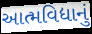
આત્મવિદ્યાનું